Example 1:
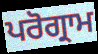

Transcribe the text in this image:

ਪਰੋਗ੍ਰਾਮ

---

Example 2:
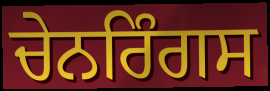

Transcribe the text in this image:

ਚੇਨਰਿੰਗਸ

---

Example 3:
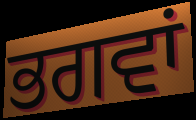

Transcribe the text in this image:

ਭਗਵਾਂ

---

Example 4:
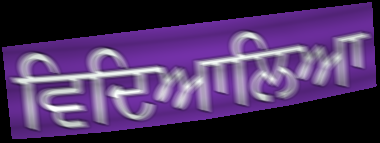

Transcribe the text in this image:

ਵਿਦਿਆਲਿਆ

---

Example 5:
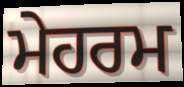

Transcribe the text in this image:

ਮੇਹਰਮ